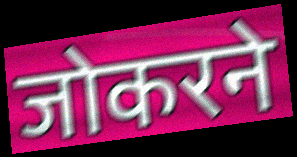
जोकरने